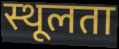
स्थूलता